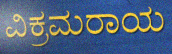
ವಿಕ್ರಮರಾಯ